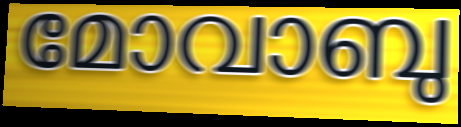
മോവാബു